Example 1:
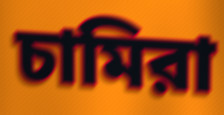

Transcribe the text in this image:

চামিরা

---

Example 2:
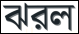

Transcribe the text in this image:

ঝরল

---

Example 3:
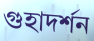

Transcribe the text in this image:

গুহাদর্শন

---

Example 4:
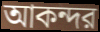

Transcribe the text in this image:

আকন্দর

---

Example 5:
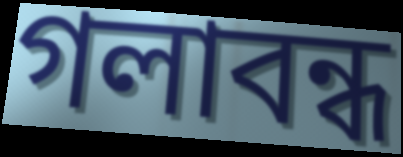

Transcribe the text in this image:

গলাবন্ধ